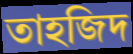
তাহজিদ